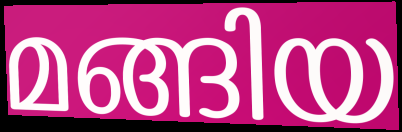
മങ്ങിയ